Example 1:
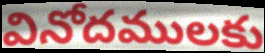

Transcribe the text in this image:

వినోదములకు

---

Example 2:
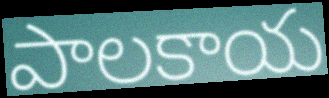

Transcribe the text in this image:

పాలకాయ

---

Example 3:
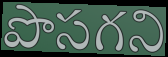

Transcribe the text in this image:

పొసగని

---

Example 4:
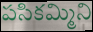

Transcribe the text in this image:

పసికమ్మిని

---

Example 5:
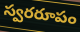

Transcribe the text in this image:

స్వరరూపం